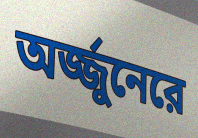
অর্জ্জুনেরে